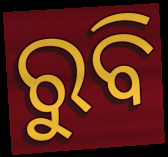
ରୁବି